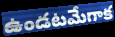
ఉండటమేగాక